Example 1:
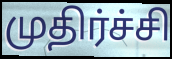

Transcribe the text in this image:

முதிர்ச்சி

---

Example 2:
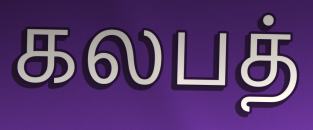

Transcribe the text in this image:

கலபத்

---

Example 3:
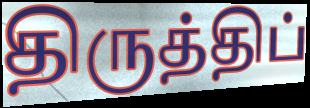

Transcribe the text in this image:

திருத்திப்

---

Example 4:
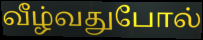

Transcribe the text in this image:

வீழ்வதுபோல்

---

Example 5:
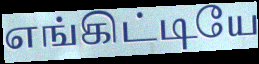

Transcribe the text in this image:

எங்கிட்டியே